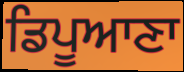
ਡਿਪੂਆਣਾ